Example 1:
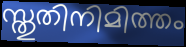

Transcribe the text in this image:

സ്തുതിനിമിത്തം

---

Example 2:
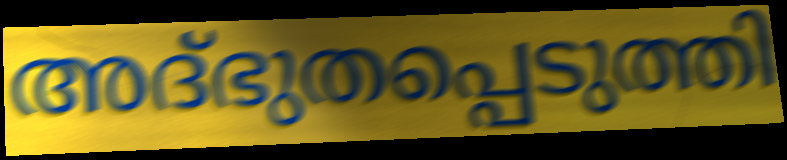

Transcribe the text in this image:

അദ്ഭുതപ്പെടുത്തി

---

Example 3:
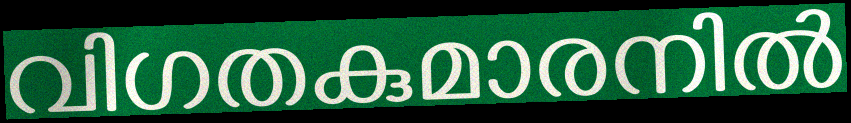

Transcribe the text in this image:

വിഗതകുമാരനിൽ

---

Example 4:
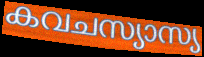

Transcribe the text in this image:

കവചസ്യാസ്യ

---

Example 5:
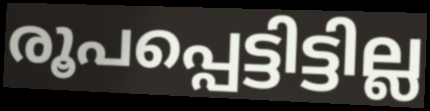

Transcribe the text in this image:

രൂപപ്പെട്ടിട്ടില്ല